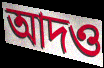
আদও